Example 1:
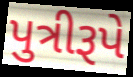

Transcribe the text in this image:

પુત્રીરૂપે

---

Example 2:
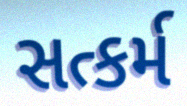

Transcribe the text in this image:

સત્કર્મ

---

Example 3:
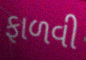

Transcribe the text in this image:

ફાળવી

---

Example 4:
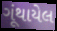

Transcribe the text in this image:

ગૂંથાયેલ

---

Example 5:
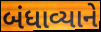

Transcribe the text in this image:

બંધાવ્યાને